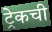
ट्रेकची